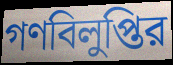
গণবিলুপ্তির